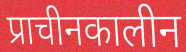
प्राचीनकालीन